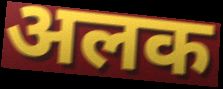
अलक